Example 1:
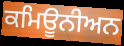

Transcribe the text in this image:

ਕਮਿਊਨੀਅਨ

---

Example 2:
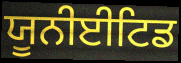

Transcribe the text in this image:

ਯੂਨੀਈਟਿਡ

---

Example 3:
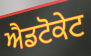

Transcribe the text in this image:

ਐਡਟੋਕੇਟ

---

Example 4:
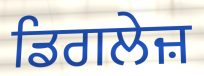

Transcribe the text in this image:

ਡਿਗਲੇਜ਼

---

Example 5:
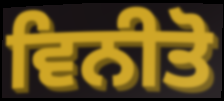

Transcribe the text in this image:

ਵਿਨੀਤੋ